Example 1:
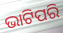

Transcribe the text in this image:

ଭାଟିପରି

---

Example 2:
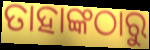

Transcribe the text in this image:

ତାହାଙ୍କଠାରୁ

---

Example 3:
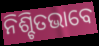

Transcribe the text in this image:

ନିଶ୍ଚିତଭାବେ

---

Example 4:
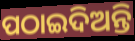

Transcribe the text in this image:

ପଠାଇଦିଅନ୍ତି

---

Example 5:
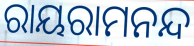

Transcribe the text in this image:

ରାୟରାମନନ୍ଦ